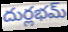
దుర్లభమ్